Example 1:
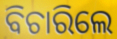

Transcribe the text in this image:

ବିଚାରିଲେ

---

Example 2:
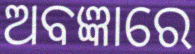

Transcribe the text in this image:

ଅବଜ୍ଞାରେ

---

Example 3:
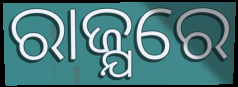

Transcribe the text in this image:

ରାଜ୍ଯରେ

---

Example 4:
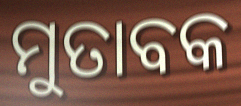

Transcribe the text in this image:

ମୁତାବକ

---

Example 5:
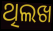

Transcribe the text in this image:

ଥିଲଖ